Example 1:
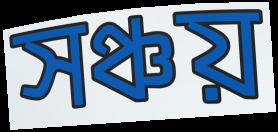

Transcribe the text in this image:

সঞ্চয়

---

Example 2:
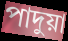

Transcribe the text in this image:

পাদুয়া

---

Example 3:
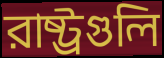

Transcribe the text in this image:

রাষ্ট্রগুলি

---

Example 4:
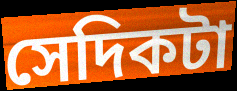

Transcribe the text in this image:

সেদিকটা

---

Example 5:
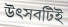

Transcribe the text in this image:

উৎসবটিই